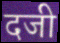
दजी